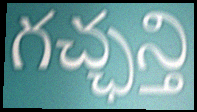
గచ్ఛన్తి